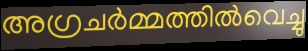
അഗ്രചർമ്മത്തിൽവെച്ചു